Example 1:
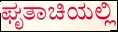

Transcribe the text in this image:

ಘೃತಾಚಿಯಲ್ಲಿ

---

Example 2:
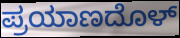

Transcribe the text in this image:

ಪ್ರಯಾಣದೊಳ್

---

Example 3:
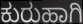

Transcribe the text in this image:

ಕುರುಹಾಗಿ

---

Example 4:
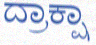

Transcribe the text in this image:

ದ್ರಾಕ್ಷಾ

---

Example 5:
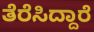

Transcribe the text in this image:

ತೆರೆಸಿದ್ದಾರೆ